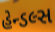
હેન્ડલ્સ